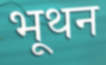
भूथन